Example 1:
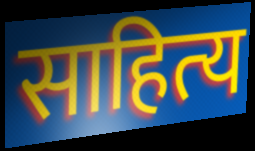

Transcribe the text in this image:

साहित्‍य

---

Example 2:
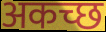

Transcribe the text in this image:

अकच्छ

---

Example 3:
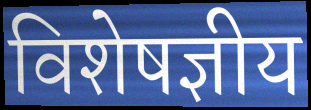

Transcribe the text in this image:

विशेषज्ञीय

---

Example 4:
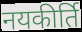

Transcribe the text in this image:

नयकीर्ति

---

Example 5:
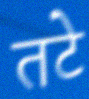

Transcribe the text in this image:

तटे